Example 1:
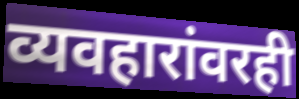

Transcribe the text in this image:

व्यवहारांवरही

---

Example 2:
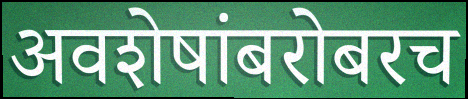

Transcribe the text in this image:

अवशेषांबरोबरच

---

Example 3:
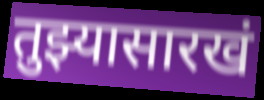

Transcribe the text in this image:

तुझ्यासारखं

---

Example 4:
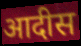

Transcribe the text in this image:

आदीस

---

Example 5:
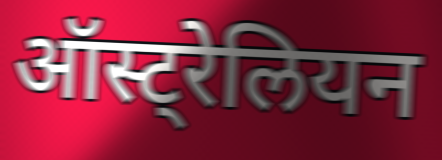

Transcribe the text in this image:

ऑस्ट्रेलियन